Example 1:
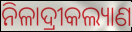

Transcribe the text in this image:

ନିଳାଦ୍ରୀକଲ୍ୟାଣ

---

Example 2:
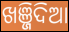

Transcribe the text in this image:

ଖଞ୍ଜିଦିଆ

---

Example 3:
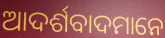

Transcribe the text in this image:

ଆଦର୍ଶବାଦମାନେ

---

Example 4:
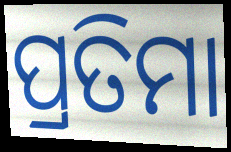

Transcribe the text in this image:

ପ୍ରତିମା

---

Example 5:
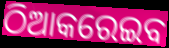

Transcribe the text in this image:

ଠିଆକରେଇବ